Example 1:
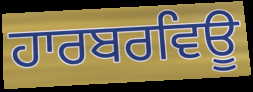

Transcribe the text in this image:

ਹਾਰਬਰਵਿਊ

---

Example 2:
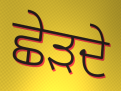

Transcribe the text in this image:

ਛੇੜਦੇ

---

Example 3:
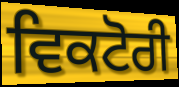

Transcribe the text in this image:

ਵਿਕਟੋਰੀ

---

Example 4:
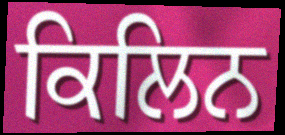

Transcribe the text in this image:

ਕਿਲਿਨ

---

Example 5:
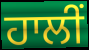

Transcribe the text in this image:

ਹਾਲੀਂ